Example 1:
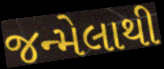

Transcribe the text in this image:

જન્મેલાથી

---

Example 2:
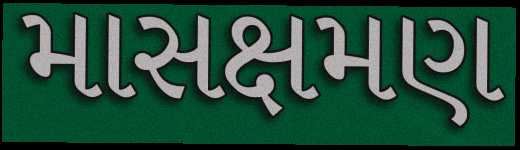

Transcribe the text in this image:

માસક્ષમણ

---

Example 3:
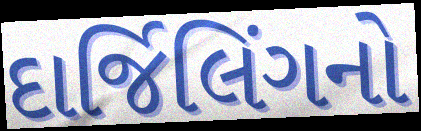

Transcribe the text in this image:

દાર્જિલિંગનો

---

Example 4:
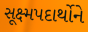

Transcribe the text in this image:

સૂક્ષ્મપદાર્થોને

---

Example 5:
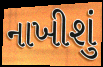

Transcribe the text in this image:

નાખીશું